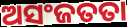
ଅସଂଜତତା